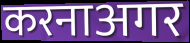
करनाअगर